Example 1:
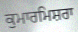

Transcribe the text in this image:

ਕੁਮਾਰਮਿਸ਼ਰਾ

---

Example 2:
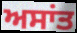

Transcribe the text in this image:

ਅਸਾਂਤ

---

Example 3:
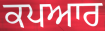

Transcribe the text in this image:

ਕਪਆਰ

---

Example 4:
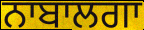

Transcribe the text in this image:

ਨਾਬਾਲਗਾ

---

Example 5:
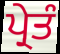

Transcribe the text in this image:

ਪ੍ਰੇਤੰ